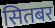
सितबर